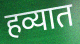
हव्यात